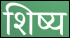
शिष्य